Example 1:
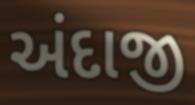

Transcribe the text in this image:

અંદાજી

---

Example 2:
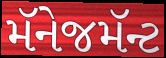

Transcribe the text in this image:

મૅનેજમૅન્ટ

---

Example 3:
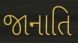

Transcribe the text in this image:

જાનાતિ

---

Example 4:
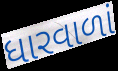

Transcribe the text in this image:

ધારવાળાં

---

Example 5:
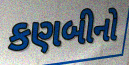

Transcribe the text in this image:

કણબીનો